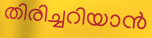
തിരിച്ചറിയാൻ